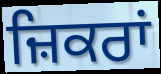
ਜ਼ਿਕਰਾਂ